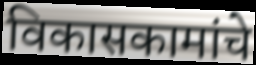
विकासकामांचे